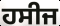
ਹਸੀਜ